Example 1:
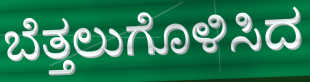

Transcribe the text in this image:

ಬೆತ್ತಲುಗೊಳಿಸಿದ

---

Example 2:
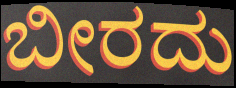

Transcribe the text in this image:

ಬೀರದು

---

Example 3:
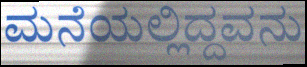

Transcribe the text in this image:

ಮನೆಯಲ್ಲಿದ್ದವನು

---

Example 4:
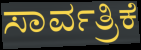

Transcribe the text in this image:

ಸಾರ್ವತ್ರಿಕೆ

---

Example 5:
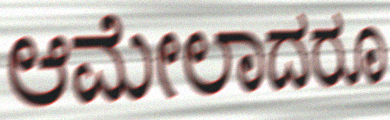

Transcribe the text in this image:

ಆಮೇಲಾದರೂ